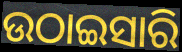
ଉଠାଇସାରି